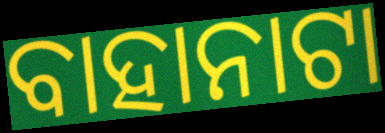
ବାହାନାଟା